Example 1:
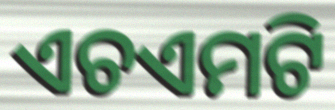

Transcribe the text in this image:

ଏଚଏମଟି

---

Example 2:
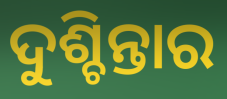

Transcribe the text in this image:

ଦୁଶ୍ଚିନ୍ତାର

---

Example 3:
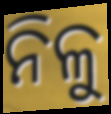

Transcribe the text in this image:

ନିଳୁ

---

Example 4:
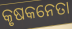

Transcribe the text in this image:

କୃଷକନେତା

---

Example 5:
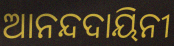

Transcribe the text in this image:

ଆନନ୍ଦଦାୟିନୀ